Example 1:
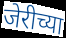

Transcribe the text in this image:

जेरीच्या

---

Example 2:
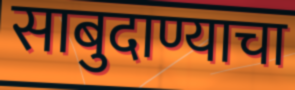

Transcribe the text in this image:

साबुदाण्याचा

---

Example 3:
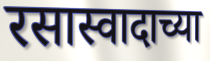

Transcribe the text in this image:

रसास्वादाच्या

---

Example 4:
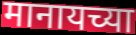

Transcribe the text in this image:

मानायच्या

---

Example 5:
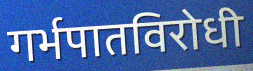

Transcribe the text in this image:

गर्भपातविरोधी